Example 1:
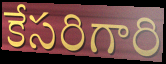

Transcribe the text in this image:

కేసరిగారి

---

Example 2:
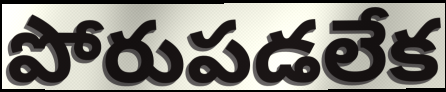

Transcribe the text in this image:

పోరుపడలేక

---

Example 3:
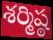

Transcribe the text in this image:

శర్మిష్ఠ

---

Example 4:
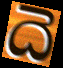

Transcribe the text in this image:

దె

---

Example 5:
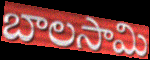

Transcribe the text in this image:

బాలసామి